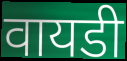
वायडी